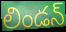
లిండన్